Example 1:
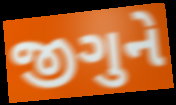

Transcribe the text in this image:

જીગુને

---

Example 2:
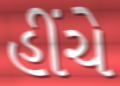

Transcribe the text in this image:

હીંચે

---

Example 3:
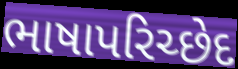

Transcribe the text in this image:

ભાષાપરિચ્છેદ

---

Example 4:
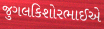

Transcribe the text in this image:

જુગલકિશોરભાઈએ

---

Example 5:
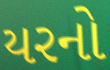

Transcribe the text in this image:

યરનો